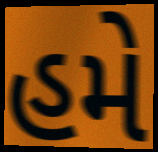
હમે